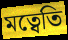
মত্বেতি